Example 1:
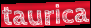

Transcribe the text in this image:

taurica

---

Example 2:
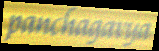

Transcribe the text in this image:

panchagavya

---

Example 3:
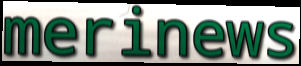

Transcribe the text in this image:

merinews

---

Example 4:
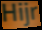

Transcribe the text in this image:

Hijr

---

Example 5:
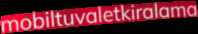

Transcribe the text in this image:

mobiltuvaletkiralama